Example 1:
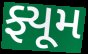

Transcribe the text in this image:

ફ્યૂમ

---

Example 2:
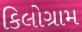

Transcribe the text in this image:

કિલોગ્રામ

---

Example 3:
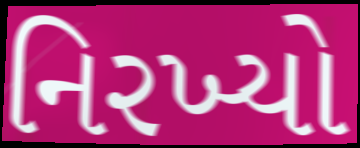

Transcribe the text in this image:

નિરખ્યો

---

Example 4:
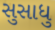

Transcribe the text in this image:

સુસાધુ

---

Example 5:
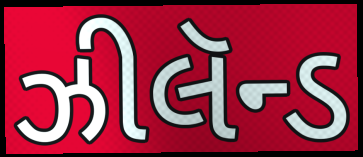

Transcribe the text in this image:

ઝીલૅન્ડ